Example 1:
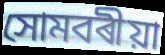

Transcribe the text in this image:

সোমবৰীয়া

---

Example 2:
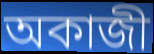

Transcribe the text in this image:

অকাজী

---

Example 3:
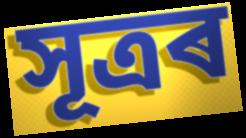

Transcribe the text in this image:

সূত্ৰৰ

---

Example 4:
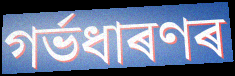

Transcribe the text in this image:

গৰ্ভধাৰণৰ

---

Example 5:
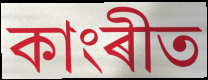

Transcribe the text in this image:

কাংৰীত